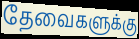
தேவைகளுக்கு